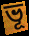
ভূ